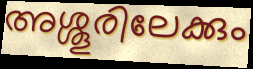
അശ്ശൂരിലേക്കും